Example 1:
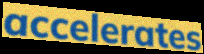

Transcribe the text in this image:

accelerates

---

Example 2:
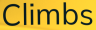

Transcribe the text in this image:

Climbs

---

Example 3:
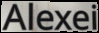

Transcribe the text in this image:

Alexei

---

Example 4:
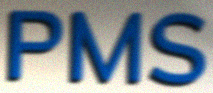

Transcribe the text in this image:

PMS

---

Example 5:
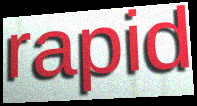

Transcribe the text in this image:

rapid